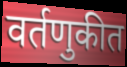
वर्तणुकीत